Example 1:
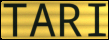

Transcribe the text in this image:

TARI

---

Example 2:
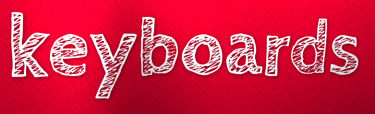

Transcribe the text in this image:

keyboards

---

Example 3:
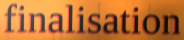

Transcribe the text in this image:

finalisation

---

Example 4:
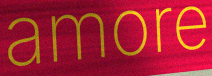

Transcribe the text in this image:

amore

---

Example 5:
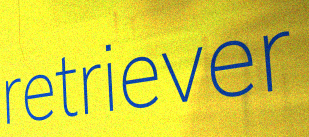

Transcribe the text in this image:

retriever